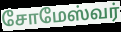
சோமேஸ்வர்